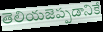
తెలియజెప్పడానికే